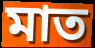
মাত